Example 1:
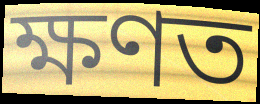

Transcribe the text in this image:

ক্ষণত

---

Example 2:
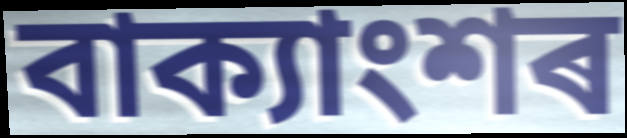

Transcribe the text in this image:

বাক্যাংশৰ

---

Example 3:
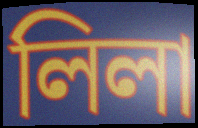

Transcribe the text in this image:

লিলা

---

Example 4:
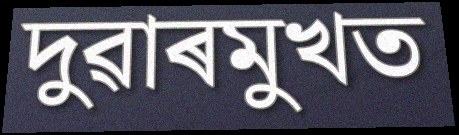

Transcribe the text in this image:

দুৱাৰমুখত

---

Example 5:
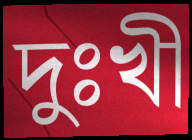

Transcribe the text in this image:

দুঃখী